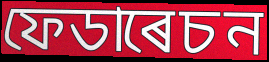
ফেডাৰেচন